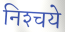
निश्चये